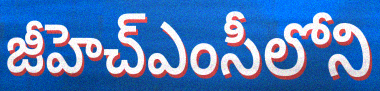
జీహెచ్ఎంసీలోని